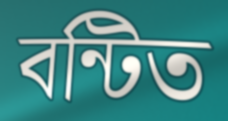
বন্টিত